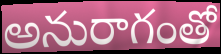
అనురాగంతో